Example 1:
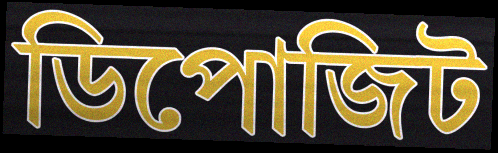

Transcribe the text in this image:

ডিপোজিট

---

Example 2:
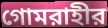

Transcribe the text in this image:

গোমরাহীর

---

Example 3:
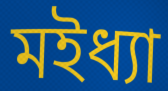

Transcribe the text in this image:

মইধ্যা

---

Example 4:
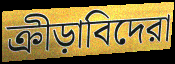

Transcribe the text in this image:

ক্রীড়াবিদেরা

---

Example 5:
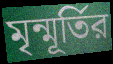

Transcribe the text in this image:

মৃন্মূর্তির